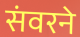
संवरने